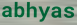
abhyas